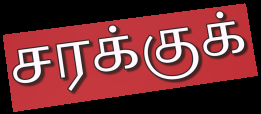
சரக்குக்